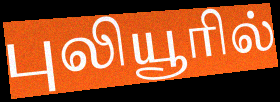
புலியூரில்